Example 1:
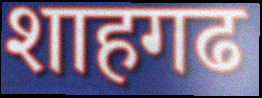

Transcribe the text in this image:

शाहगढ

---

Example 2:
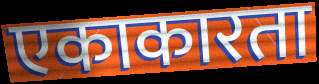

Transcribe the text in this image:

एकाकारता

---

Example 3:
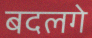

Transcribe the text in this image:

बदलगे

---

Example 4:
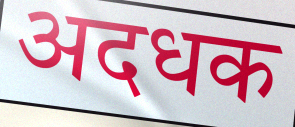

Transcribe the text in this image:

अदधक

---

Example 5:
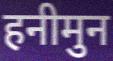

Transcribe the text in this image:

हनीमुन